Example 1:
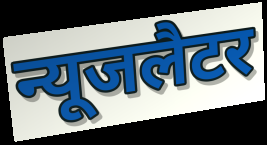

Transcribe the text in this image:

न्यूजलैटर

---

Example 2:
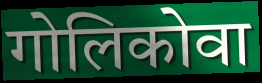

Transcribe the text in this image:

गोलिकोवा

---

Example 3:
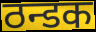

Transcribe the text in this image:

ठन्डक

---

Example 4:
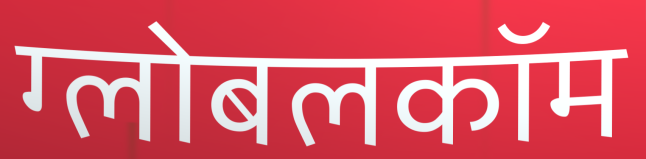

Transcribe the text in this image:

ग्लोबलकॉम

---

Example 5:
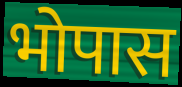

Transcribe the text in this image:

भोपास